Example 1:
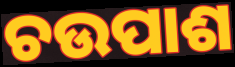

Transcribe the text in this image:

ଚଉପାଶ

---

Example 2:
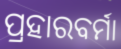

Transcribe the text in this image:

ପ୍ରହାରବର୍ମା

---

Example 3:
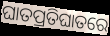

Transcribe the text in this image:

ଘାତପ୍ରତିଘାତରେ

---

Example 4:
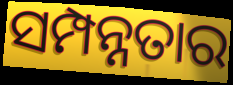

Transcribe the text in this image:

ସମ୍ପନ୍ନତାର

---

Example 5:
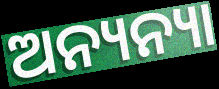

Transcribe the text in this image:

ଅନ୍ୟନ୍ୟା